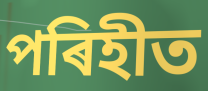
পৰিহীত